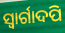
ସ୍ୱାର୍ଗାଦପି